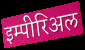
इम्पीरिअल